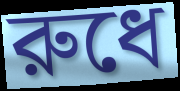
রুধে